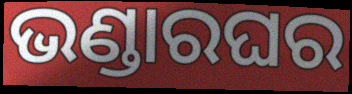
ଭଣ୍ଡାରଘର